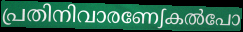
പ്രതിനിവാരണേഽകൽപോ